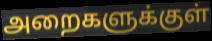
அறைகளுக்குள்